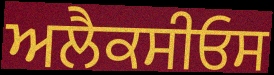
ਅਲੈਕਸੀਓਸ